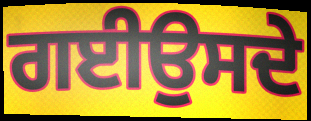
ਗਈਉਸਦੇ